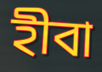
হীবা